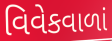
વિવેકવાળાં